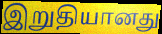
இறுதியானது